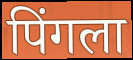
पिंगला